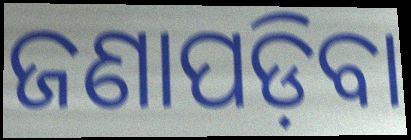
ଜଣାପଡ଼ିବା